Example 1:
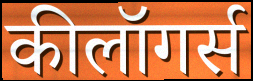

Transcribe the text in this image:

कीलॉगर्स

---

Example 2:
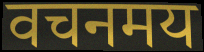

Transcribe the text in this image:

वचनमय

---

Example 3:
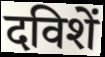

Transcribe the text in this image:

दविशें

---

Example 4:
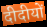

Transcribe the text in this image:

दीदीयों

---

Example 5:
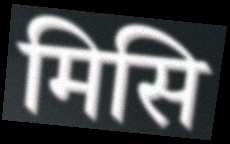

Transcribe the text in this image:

मिसि